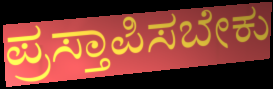
ಪ್ರಸ್ತಾಪಿಸಬೇಕು